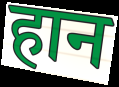
हान